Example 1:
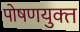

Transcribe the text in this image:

पोषणयुक्‍त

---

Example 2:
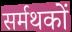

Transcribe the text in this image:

सर्मथकों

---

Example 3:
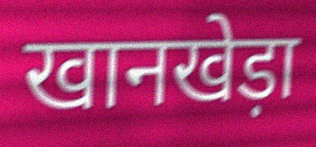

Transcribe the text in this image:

खानखेड़ा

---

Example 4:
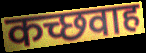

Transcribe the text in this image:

कच्छवाह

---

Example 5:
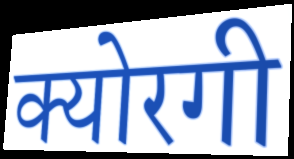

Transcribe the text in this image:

क्योरगी